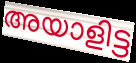
അയാളിട്ട